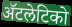
ॲटलेटिको